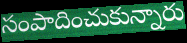
సంపాదించుకున్నారు